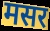
मसर